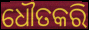
ଧୌତକରି